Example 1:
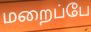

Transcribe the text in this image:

மறைப்பே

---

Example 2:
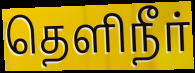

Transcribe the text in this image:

தெளிநீர்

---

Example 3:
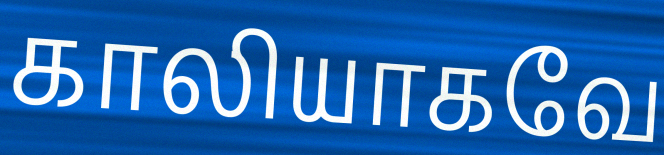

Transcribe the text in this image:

காலியாகவே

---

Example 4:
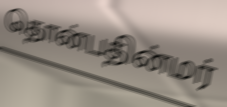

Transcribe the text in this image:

தொன்பதின்மர்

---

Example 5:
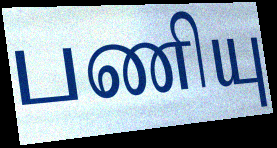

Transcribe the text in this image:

பணியு